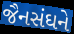
જૈનસંઘને